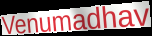
Venumadhav